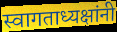
स्वागताध्यक्षांनी